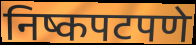
निष्कपटपणे